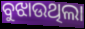
ବୁଝାଉଥିଲା